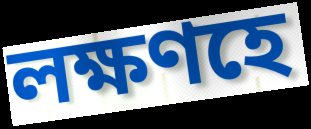
লক্ষণহে